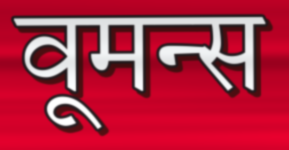
वूमन्स